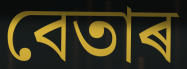
বেতাৰ